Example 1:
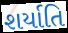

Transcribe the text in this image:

શર્યાતિ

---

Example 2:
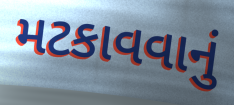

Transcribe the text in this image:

મટકાવવાનું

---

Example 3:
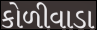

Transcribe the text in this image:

કોળીવાડા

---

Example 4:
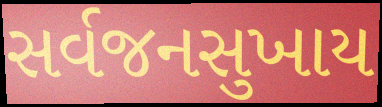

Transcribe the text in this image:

સર્વજનસુખાય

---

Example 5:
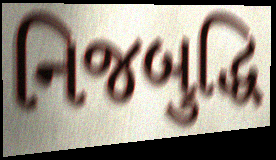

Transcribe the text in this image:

નિજબુદ્ધિ